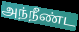
அந்நீண்ட